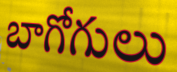
బాగోగులు